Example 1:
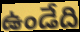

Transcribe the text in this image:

ఉండేది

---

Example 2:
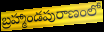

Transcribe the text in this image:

బ్రహ్మాండపురాణంలో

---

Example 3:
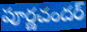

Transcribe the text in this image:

పూర్ణచందర్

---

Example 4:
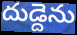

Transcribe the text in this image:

దుడ్దెను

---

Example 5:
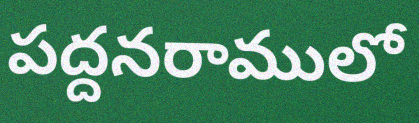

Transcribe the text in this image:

పద్దనరాములో